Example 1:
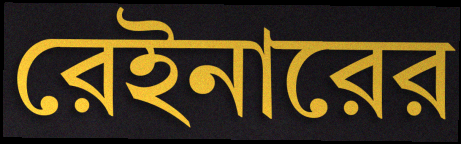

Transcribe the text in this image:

রেইনারের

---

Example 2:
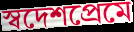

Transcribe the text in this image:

স্বদেশপ্রেমে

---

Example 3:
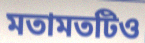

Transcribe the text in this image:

মতামতটিও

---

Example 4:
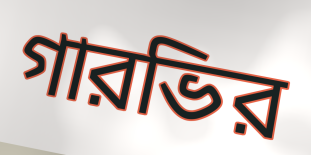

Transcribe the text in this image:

গারভির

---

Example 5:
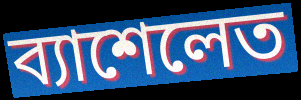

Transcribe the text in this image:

ব্যাশেলেত